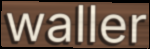
waller